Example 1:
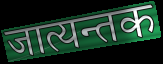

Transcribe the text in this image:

जात्यन्तक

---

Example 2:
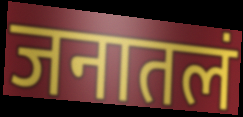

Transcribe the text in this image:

जनातलं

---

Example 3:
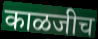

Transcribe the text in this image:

काळजीच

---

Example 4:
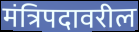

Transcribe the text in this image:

मंत्रिपदावरील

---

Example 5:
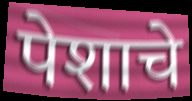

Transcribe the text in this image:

पेशाचे